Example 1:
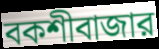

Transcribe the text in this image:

বকশীবাজার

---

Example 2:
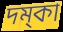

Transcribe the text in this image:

দম্‌কা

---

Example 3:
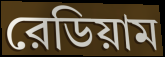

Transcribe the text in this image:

রেডিয়াম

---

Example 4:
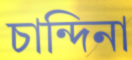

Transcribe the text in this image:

চান্দিনা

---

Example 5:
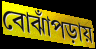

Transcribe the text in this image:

বোঝাঁপড়ায়